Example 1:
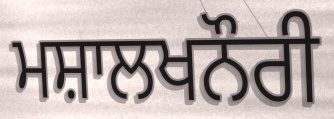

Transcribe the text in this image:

ਮਸ਼ਾਲਖਨੌਰੀ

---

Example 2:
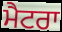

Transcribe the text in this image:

ਮੈਟਰਾ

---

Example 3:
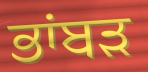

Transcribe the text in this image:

ਭਾਂਬੜ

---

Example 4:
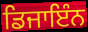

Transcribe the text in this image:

ਡਿਜਾਇੰਨ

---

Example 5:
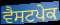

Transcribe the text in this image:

ਵੈਸਟਪੇਕ